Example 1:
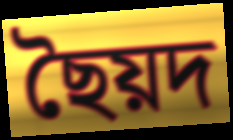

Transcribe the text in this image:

ছৈয়দ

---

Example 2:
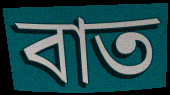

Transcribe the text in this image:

বাত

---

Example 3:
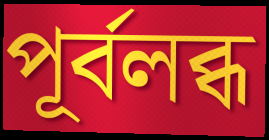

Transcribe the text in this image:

পূৰ্বলব্ধ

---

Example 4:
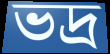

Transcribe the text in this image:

ভদ্ৰ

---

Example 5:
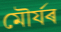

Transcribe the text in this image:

মৌৰ্যৰ